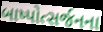
બાષ્પોત્સર્જનના